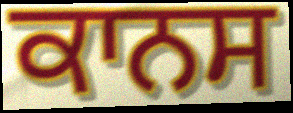
ਕਾਨਸ